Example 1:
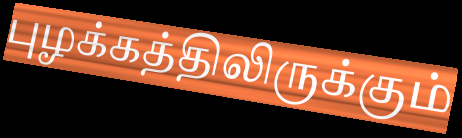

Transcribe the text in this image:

புழக்கத்திலிருக்கும்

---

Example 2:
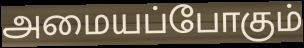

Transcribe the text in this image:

அமையப்போகும்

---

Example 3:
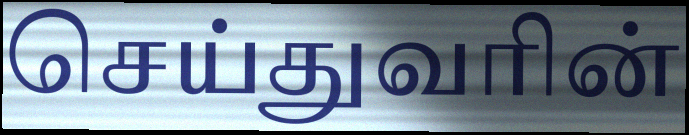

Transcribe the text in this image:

செய்துவரின்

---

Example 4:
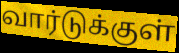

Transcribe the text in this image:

வார்டுக்குள்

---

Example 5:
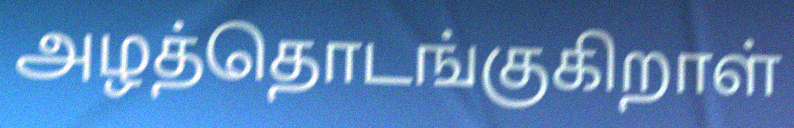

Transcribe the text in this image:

அழத்தொடங்குகிறாள்